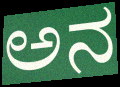
ಅನ